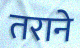
तराने